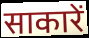
साकारें